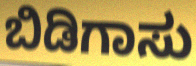
ಬಿಡಿಗಾಸು